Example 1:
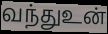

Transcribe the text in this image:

வந்துஉன்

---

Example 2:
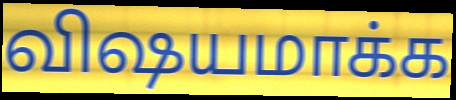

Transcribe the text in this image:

விஷயமாக்க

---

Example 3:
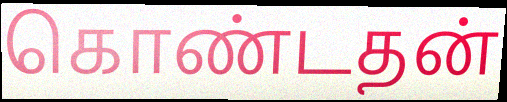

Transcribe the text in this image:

கொண்டதன்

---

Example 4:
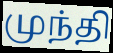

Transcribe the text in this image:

முந்தி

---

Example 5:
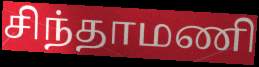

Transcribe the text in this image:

சிந்தாமணி